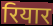
रियार